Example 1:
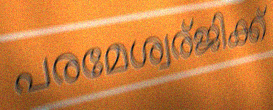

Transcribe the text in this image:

പരമേശ്വര്ജിക്ക്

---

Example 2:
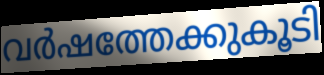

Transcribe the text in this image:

വർഷത്തേക്കുകൂടി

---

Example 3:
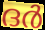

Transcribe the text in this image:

ദർ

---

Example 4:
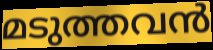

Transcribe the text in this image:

മടുത്തവൻ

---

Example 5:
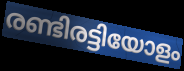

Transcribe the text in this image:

രണ്ടിരട്ടിയോളം